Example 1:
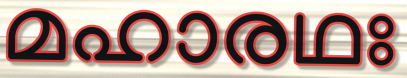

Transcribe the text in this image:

മഹാരഥഃ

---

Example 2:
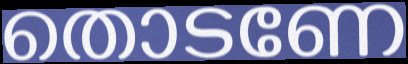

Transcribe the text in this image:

തൊടണേ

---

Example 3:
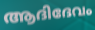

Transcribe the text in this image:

ആദിദേവം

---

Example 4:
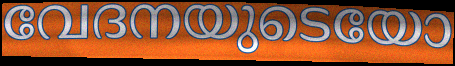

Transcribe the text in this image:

വേദനയുടെയോ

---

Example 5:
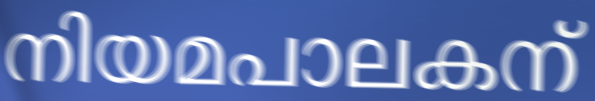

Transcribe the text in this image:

നിയമപാലകന്